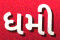
ધમી